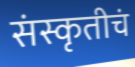
संस्कृतीचं